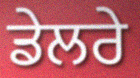
ਡੇਲਰੇ